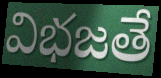
విభజతే